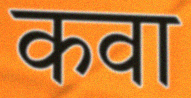
कवा